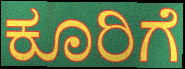
ಕೂರಿಗೆ